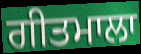
ਗੀਤਮਾਲਾ